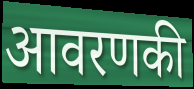
आवरणकी